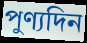
পুণ্যদিন